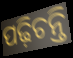
ପଢ଼ିଚନ୍ତି